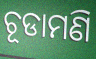
ଚୂଡାମଣି